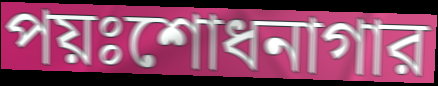
পয়ঃশোধনাগার